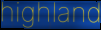
highland